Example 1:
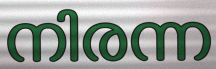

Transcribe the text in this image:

നിരന്ന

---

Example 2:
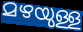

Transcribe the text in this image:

മഴയുള്ള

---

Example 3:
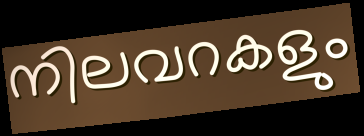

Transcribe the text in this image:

നിലവറകളും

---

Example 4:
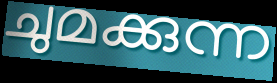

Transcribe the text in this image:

ചുമക്കുന്ന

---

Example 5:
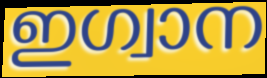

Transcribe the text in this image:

ഇഗ്വാന